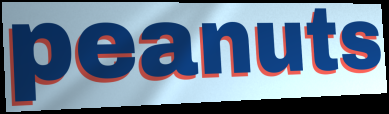
peanuts